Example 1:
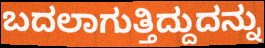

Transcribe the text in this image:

ಬದಲಾಗುತ್ತಿದ್ದುದನ್ನು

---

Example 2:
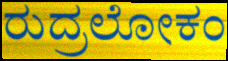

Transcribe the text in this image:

ರುದ್ರಲೋಕಂ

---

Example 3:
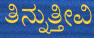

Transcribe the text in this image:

ತಿನ್ನುತ್ತೀವಿ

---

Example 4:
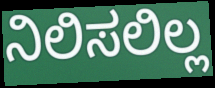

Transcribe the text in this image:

ನಿಲಿಸಲಿಲ್ಲ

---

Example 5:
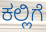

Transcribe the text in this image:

ಕಲ್ಲಿಗೆ